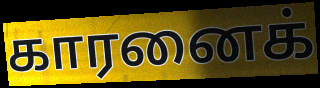
காரனைக்